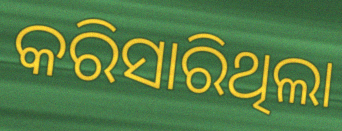
କରିସାରିଥିଲା